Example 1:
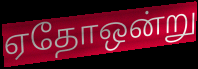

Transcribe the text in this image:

ஏதோஒன்று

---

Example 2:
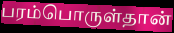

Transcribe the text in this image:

பரம்பொருள்தான்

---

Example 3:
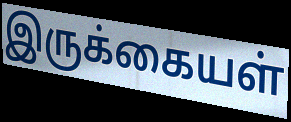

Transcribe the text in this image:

இருக்கையள்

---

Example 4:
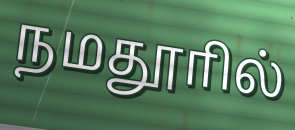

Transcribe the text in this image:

நமதூரில்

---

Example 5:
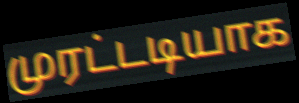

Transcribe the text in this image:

முரட்டடியாக